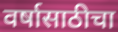
वर्षासाठीचा